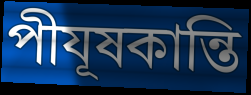
পীযূষকান্তি